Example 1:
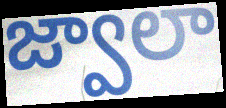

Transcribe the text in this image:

జ్వాలా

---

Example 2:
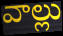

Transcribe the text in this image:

వాల్లు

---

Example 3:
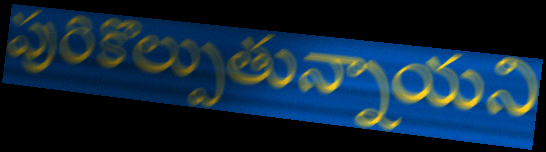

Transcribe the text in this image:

పురికొల్పుతున్నాయని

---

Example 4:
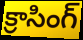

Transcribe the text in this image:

క్రాసింగ్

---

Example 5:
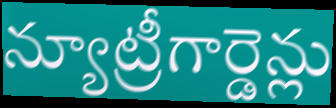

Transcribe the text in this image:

న్యూట్రీగార్డెన్లు